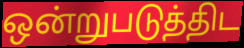
ஒன்றுபடுத்திட